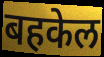
बहकेल